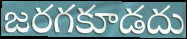
జరగకూడదు